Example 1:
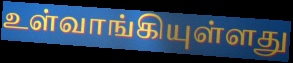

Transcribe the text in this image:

உள்வாங்கியுள்ளது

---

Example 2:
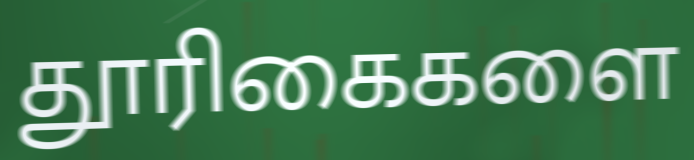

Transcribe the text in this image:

தூரிகைகளை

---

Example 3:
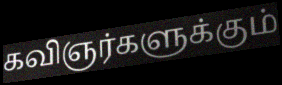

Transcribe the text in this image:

கவிஞர்களுக்கும்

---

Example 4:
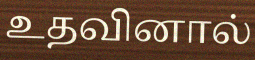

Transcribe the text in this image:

உதவினால்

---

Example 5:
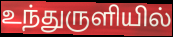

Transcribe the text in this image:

உந்துருளியில்